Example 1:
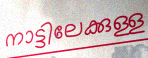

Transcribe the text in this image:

നാട്ടിലേക്കുള്ള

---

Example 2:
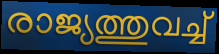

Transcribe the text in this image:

രാജ്യത്തുവച്ച്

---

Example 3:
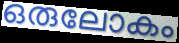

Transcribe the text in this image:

ഒരുലോകം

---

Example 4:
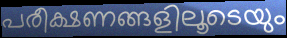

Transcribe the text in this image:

പരീക്ഷണങ്ങളിലൂടെയും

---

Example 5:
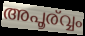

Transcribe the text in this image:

അപൂര്വ്വം